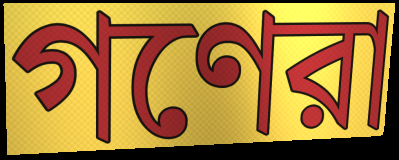
গণেরা